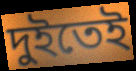
দুইতেই